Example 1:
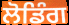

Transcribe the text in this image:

ਲੋਡਿੰਗ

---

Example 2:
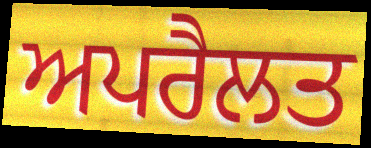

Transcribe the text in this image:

ਅਪਰੈਲਤ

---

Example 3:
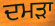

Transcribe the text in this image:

ਦਮੜਾ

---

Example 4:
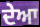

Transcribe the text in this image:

ਦੇਆ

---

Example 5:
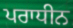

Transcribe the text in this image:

ਪਰਾਧੀਨ